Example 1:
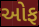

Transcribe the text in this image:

ઓફ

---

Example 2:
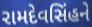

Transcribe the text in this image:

રામદેવસિંહને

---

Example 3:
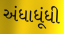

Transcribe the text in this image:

અંધાધૂંધી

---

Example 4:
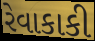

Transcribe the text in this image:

રેવાકાકી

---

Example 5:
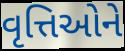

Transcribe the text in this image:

વૃત્તિઓને